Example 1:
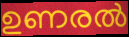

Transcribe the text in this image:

ഉണരൽ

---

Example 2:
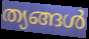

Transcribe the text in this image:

ത്യങ്ങൾ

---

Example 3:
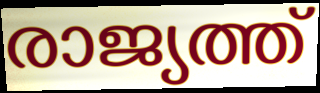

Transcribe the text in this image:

രാജ്യത്ത്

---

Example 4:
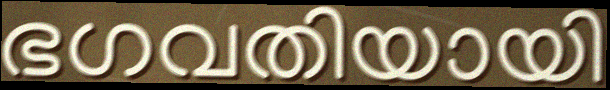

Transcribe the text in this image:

ഭഗവതിയായി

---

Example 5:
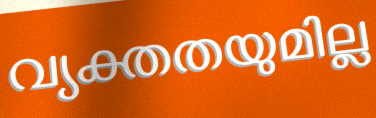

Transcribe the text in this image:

വ്യക്തതയുമില്ല